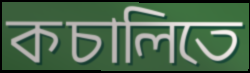
কচালিতে